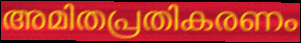
അമിതപ്രതികരണം